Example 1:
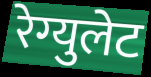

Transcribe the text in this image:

रेग्‍युलेट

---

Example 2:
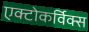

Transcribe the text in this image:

एक्टोकर्विक्स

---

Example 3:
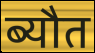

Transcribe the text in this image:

ब्यौत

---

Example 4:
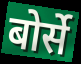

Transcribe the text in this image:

बोर्से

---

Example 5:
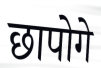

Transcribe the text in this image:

छापोगे